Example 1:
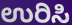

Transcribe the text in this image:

ಉರಿಸಿ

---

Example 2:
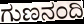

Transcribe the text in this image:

ಗುಣನಂದಿ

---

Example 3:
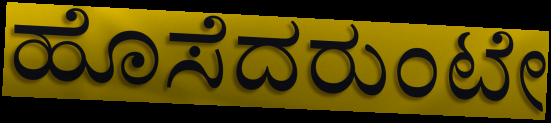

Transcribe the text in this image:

ಹೊಸೆದರುಂಟೇ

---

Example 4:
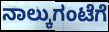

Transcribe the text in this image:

ನಾಲ್ಕುಗಂಟೆಗೆ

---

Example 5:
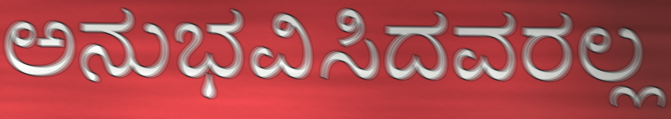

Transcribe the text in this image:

ಅನುಭವಿಸಿದವರಲ್ಲ